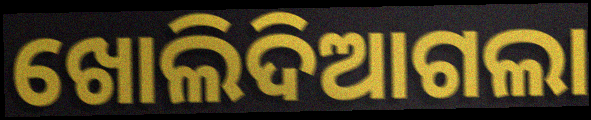
ଖୋଲିଦିଆଗଲା